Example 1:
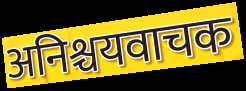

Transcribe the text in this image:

अनिश्चयवाचक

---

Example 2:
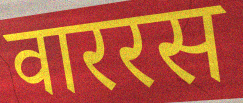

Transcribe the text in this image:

वाररस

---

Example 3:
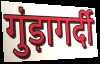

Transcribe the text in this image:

गुंड़ागर्दी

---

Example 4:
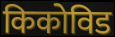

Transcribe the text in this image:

किकोविड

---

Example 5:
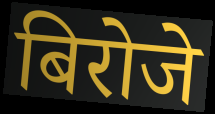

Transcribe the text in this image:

बिरोजे